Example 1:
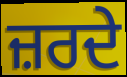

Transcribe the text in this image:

ਜ਼ਰਦੇ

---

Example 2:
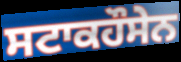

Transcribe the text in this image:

ਸਟਾਕਹੌਸੇਨ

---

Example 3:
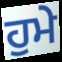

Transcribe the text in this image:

ਹੁਮੇ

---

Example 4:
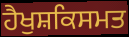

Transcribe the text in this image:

ਹੈਖੁਸ਼ਕਿਸਮਤ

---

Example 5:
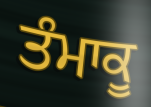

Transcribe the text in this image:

ਤੰਮਾਕੂ